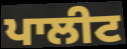
ਪਾਲੀਟ